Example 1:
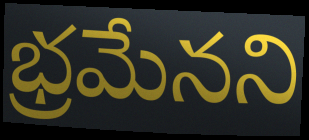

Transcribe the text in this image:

భ్రమేనని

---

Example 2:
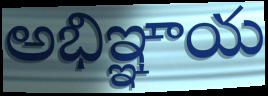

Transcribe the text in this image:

అభిఞ్ఞాయ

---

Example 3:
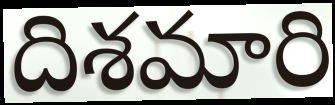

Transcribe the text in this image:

దిశమారి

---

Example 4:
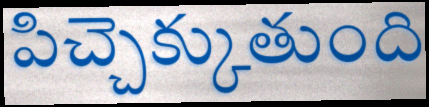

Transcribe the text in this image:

పిచ్చెక్కుతుంది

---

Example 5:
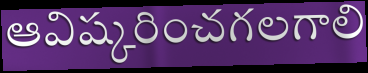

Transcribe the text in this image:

ఆవిష్కరించగలగాలి